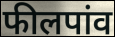
फीलपांव